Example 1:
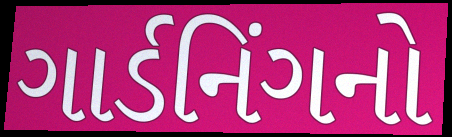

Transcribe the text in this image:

ગાર્ડનિંગનો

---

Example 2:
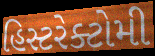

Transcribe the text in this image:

હિસ્ટરેક્ટોમી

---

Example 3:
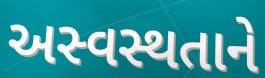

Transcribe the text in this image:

અસ્વસ્થતાને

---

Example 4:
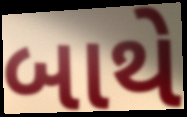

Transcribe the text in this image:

બાથે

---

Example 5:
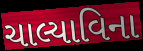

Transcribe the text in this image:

ચાલ્યાવિના